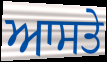
ਆਸਤੇ